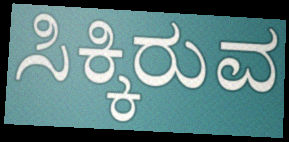
ಸಿಕ್ಕಿರುವ